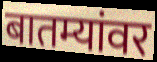
बातम्यांवर